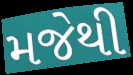
મજેથી